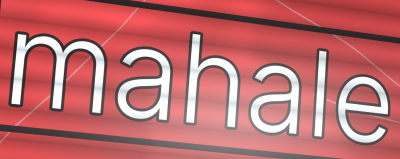
mahale